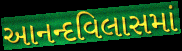
આનન્દવિલાસમાં